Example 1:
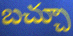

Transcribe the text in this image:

బచ్చూ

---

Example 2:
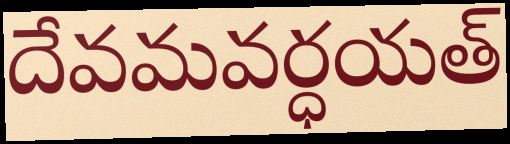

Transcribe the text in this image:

దేవమవర్ధయత్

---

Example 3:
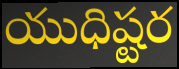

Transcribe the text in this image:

యుధిష్టర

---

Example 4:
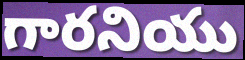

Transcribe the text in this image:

గారనియు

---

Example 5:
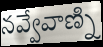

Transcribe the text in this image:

నవ్వేవాణ్ని